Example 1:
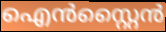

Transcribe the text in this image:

ഐൻസ്റ്റൈൻ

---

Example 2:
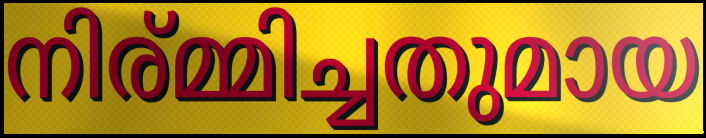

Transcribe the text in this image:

നിര്മ്മിച്ചതുമായ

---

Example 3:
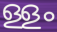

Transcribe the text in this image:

ള്ളം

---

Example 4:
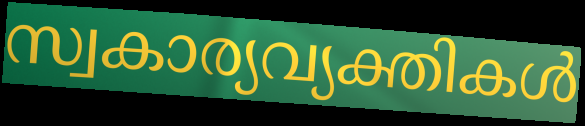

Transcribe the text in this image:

സ്വകാര്യവ്യക്തികൾ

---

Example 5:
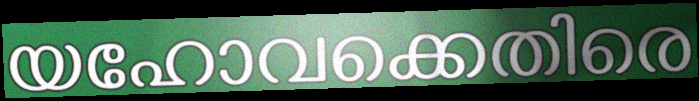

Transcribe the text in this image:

യഹോവക്കെതിരെ